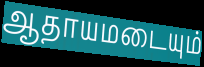
ஆதாயமடையும்